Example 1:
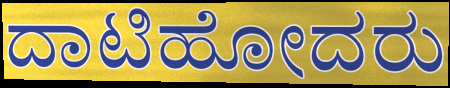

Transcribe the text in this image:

ದಾಟಿಹೋದರು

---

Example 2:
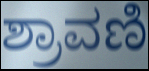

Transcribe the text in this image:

ಶ್ರಾವಣಿ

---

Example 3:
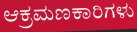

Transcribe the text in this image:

ಆಕ್ರಮಣಕಾರಿಗಳು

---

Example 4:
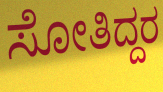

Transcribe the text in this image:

ಸೋತಿದ್ದರ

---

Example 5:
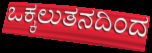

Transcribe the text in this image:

ಒಕ್ಕಲುತನದಿಂದ